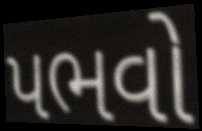
પભવો